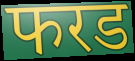
फरड